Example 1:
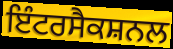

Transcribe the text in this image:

ਇੰਟਰਸੈਕਸ਼ਨਲ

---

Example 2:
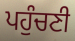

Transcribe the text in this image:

ਪਹੁੰਚਣੀ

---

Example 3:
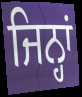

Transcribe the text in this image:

ਜਿਨ੍ਹਾਂ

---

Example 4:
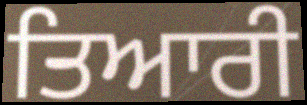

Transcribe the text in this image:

ਤਿਆਰੀ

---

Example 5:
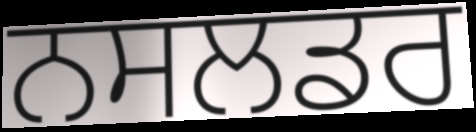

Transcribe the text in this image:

ਨਸਲਡਰ